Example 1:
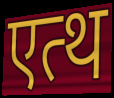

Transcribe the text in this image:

एत्थ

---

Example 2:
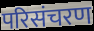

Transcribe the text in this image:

परिसंचरण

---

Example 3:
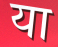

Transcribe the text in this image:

या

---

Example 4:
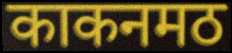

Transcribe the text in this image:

काकनमठ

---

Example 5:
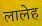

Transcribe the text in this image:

लालेह